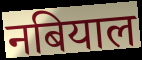
नबियाल